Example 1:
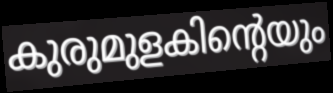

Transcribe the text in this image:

കുരുമുളകിന്റെയും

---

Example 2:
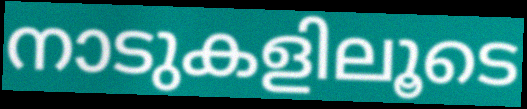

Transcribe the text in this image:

നാടുകളിലൂടെ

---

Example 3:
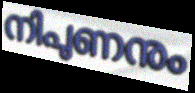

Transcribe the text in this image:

നിപുണനും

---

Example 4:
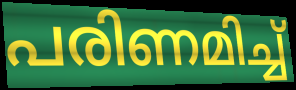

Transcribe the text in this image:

പരിണമിച്ച്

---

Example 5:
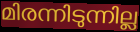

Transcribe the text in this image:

മിരന്നിടുന്നില്ല